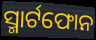
ସ୍ମାର୍ଟଫୋନ